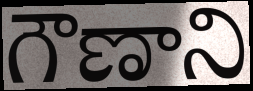
గౌణాని